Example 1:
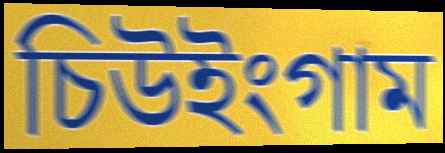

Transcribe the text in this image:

চিউইংগাম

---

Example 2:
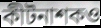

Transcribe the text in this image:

কীটনাশকও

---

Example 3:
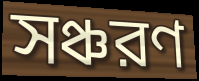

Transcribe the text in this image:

সঞ্চরণ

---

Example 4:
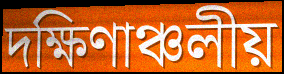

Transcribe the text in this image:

দক্ষিণাঞ্চলীয়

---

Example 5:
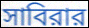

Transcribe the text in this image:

সাবিরার